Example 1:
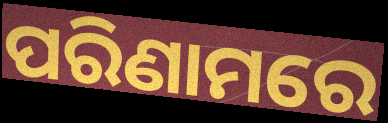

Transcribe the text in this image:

ପରିଣାମରେ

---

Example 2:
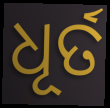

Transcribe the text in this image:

ଧୂର୍ତ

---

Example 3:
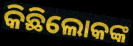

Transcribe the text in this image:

କିଛିଲୋକଙ୍କ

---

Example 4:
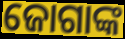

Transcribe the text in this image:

ଜୋଗାଙ୍କ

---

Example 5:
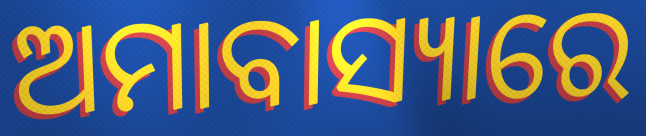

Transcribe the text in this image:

ଅମାବାସ୍ୟାରେ